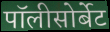
पॉलीसोर्बेट